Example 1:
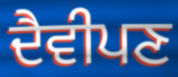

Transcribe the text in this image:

ਦੈਵੀਪਣ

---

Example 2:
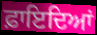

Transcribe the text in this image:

ਫ਼ਾਇਦਿਆਂ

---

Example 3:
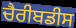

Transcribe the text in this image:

ਚੈਰੀਬਡੀਸ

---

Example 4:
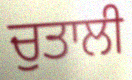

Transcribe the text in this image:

ਚੁਤਾਲੀ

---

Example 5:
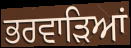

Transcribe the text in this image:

ਭਰਵਾੜਿਆਂ